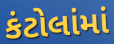
કંટોલાંમાં